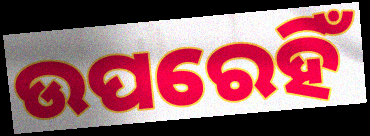
ଉପରେହିଁ